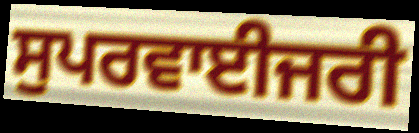
ਸੁਪਰਵਾਈਜਰੀ